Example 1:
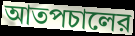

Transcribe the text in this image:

আতপচালের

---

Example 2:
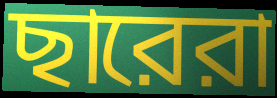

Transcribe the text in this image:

ছারেরা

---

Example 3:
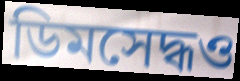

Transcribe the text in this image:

ডিমসেদ্ধও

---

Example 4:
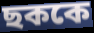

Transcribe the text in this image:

ছককে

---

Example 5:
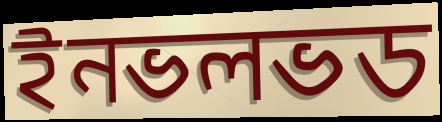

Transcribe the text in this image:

ইনভলভড